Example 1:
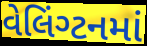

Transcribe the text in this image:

વેલિંગ્ટનમાં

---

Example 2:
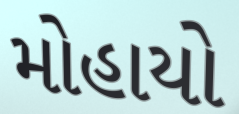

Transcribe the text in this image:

મોહાયો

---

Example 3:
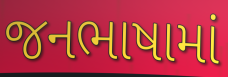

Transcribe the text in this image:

જનભાષામાં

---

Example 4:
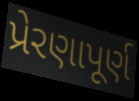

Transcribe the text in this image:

પ્રેરણાપૂર્ણ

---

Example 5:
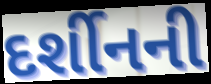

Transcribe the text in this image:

દર્શીનની